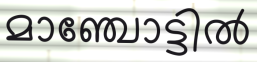
മാഞ്ചോട്ടിൽ